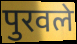
पुरवले